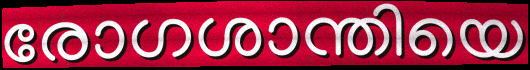
രോഗശാന്തിയെ